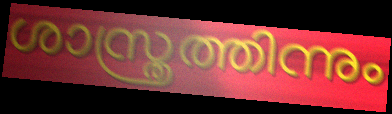
ശാസ്ത്രത്തിന്നും